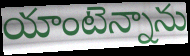
యాంటెన్నాను